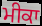
ਮੀਕਾ